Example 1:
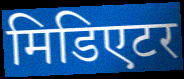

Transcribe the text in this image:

मिडिएटर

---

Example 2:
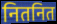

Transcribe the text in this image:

नितनित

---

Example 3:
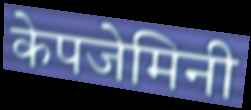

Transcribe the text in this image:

केपजेमिनी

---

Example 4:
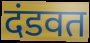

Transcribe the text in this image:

दंडवत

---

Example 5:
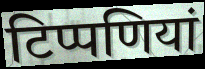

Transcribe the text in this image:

टिप्‍पणियां